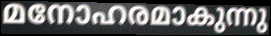
മനോഹരമാകുന്നു